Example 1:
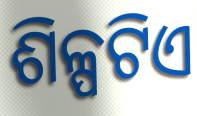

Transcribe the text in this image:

ଶିଳ୍ପଟିଏ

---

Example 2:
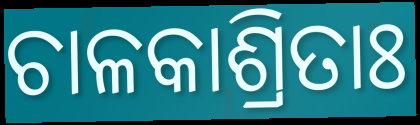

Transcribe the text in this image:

ଚାଳକାଶ୍ରିତାଃ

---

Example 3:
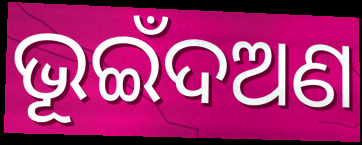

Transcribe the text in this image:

ଭୂଇଁଦଅଣ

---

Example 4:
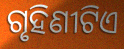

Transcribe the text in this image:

ଗୃହିଣୀଟିଏ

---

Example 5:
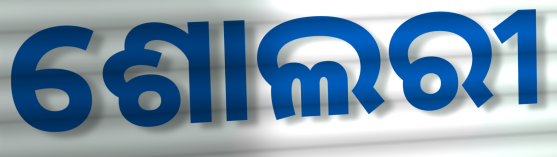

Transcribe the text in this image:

ଶୋଲରୀ